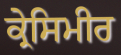
ਕ੍ਰੇਸਿਮੀਰ